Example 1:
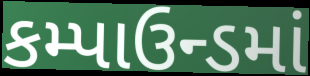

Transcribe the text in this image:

કમ્પાઉન્ડમાં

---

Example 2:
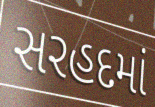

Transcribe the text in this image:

સરહદમાં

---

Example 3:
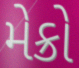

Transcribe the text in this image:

મેક્રો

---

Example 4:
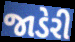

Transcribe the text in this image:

જાડેરી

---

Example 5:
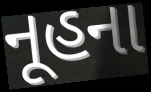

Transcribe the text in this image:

નૂહના